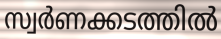
സ്വർണക്കടത്തിൽ